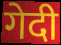
गेदी